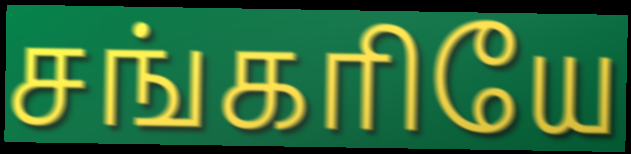
சங்கரியே